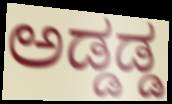
ಅಡ್ಡಡ್ಡ